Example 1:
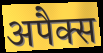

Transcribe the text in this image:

अपैक्स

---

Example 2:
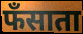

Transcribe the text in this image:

फँसाता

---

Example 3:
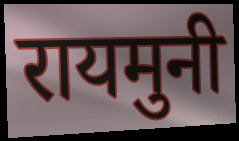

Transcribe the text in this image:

रायमुनी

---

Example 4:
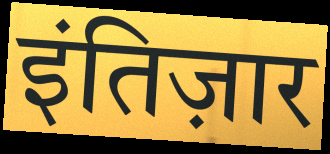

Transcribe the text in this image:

इंतिज़ार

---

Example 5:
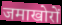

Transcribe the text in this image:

जमाखोरों